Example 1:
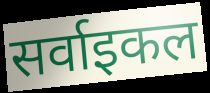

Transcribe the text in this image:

सर्वाइकल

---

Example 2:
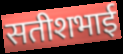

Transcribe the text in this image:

सतीशभाई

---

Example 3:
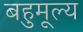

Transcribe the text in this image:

बहुमूल्य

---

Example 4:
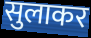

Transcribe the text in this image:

सुलाकर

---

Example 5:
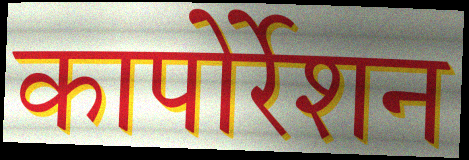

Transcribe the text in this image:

कापोर्रेशन